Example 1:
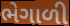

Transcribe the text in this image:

ભેગાળી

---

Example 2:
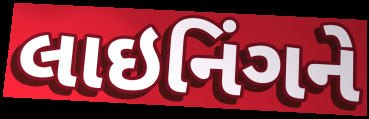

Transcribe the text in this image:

લાઇનિંગને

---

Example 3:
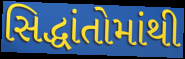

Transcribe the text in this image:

સિદ્ધાંતોમાંથી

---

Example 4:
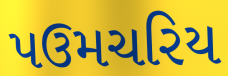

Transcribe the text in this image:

પઉમચરિય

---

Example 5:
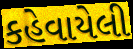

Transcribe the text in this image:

કહેવાયેલી